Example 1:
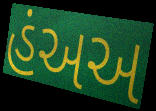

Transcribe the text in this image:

હંઅઅ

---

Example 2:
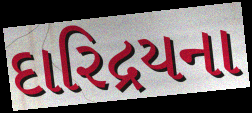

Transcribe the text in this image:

દારિદ્રયના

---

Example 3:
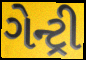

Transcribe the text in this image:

ગેન્ટ્રી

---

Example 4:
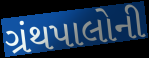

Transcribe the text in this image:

ગ્રંથપાલોની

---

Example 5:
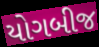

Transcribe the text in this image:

યોગબીજ